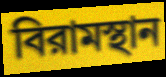
বিরামস্থান